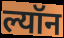
ल्यॉन